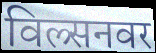
विल्सनवर